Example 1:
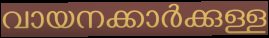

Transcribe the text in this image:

വായനക്കാർക്കുള്ള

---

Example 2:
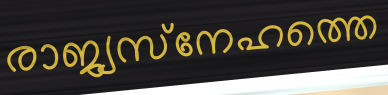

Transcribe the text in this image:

രാജ്യസ്‌നേഹത്തെ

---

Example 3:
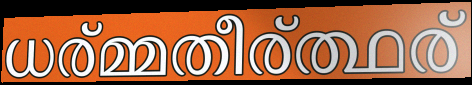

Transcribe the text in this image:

ധര്മ്മതീര്ത്ഥര്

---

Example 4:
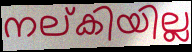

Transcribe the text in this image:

നല്കിയില്ല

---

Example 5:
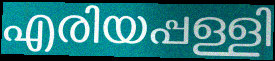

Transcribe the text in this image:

എരിയപ്പള്ളി